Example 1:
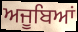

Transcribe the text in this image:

ਅਜੂਬਿਆਂ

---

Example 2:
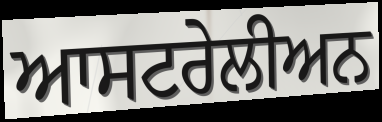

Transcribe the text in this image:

ਆਸਟਰੇਲੀਅਨ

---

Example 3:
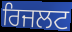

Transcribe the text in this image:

ਰਿਜਲਟ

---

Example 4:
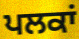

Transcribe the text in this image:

ਪਲਕਾਂ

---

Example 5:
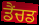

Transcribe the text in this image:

ਡੈਂਚਡ